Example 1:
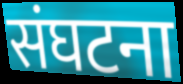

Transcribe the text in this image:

संघटना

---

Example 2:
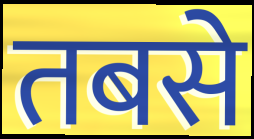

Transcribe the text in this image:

तबसे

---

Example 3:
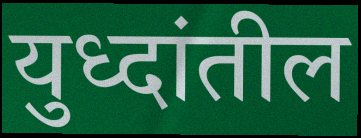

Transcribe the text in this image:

युध्दांतील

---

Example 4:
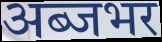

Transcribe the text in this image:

अब्जभर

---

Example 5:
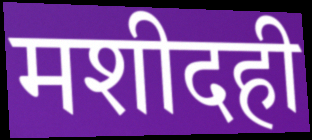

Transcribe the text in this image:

मशीदही